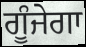
ਗੂੰਜੇਗਾ